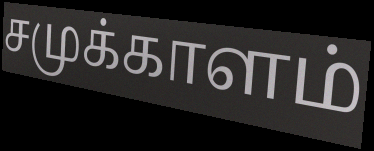
சமுக்காளம்